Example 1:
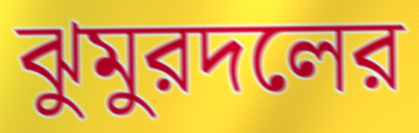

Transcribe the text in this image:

ঝুমুরদলের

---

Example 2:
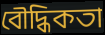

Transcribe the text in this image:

বৌদ্ধিকতা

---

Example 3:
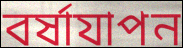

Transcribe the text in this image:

বর্ষাযাপন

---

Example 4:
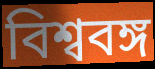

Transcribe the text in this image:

বিশ্ববঙ্গ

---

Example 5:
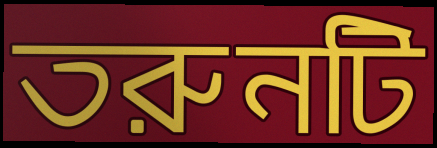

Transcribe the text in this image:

তরুনটি